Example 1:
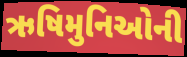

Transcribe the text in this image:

ઋષિમુનિઓની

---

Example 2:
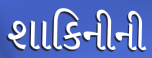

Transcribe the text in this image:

શાકિનીની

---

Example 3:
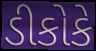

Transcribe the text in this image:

ડીકોકે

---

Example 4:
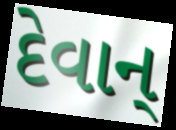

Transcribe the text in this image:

દેવાન્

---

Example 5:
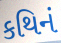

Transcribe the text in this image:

કથિનં